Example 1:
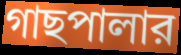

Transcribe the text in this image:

গাছপালার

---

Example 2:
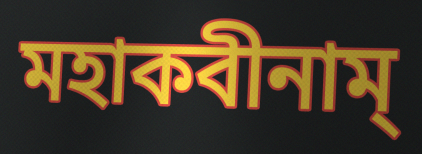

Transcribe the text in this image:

মহাকবীনাম্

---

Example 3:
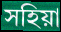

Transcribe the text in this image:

সহিয়া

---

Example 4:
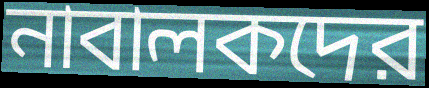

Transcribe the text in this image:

নাবালকদের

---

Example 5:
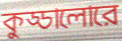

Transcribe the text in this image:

কুড্ডালোরে